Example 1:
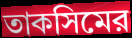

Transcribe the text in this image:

তাকসিমের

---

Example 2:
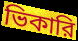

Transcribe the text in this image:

ভিকারি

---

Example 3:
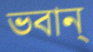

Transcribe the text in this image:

ভবান্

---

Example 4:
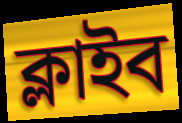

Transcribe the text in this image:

ক্লাইব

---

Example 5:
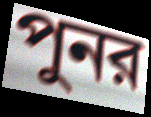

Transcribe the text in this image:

পুনর